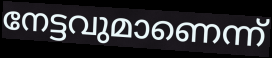
നേട്ടവുമാണെന്ന്